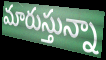
మారుస్తున్నా